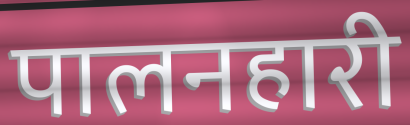
पालनहारी